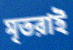
মৃতরাই